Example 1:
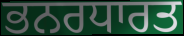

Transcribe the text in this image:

ਭਨਰਧਾਰਤ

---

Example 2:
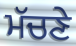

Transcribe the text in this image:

ਮੱਚਣੇ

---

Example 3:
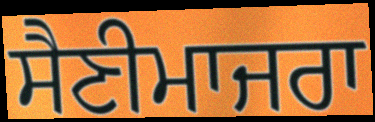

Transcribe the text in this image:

ਸੈਣੀਮਾਜਰਾ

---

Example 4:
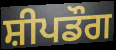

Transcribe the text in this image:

ਸ਼ੀਪਡੌਗ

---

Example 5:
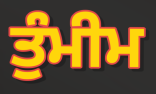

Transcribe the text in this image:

ਤੁੰਮੀਮ